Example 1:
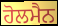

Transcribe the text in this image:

ਹੋਲਮੈਨ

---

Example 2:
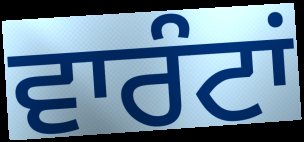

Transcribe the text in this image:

ਵਾਰੰਟਾਂ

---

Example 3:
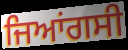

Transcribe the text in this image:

ਜਿਆਂਗਸੀ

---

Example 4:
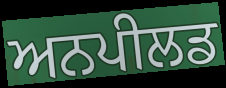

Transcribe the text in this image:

ਅਨਪੀਲਡ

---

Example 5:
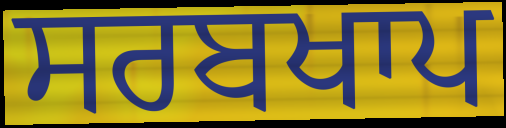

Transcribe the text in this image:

ਸਰਬਖਾਪ